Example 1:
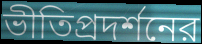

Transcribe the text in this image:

ভীতিপ্রদর্শনের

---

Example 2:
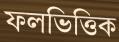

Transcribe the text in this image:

ফলভিত্তিক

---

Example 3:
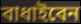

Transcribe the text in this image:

বাধাইবেন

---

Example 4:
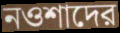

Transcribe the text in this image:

নওশাদের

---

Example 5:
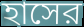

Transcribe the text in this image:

হাসের